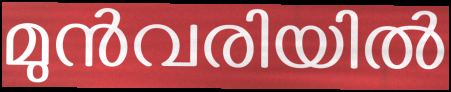
മുൻവരിയിൽ